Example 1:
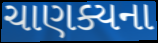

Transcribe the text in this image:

ચાણક્યના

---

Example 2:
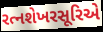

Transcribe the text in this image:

રત્નશેખરસૂરિએ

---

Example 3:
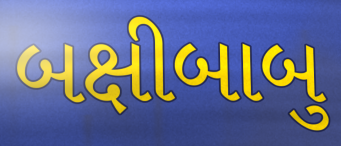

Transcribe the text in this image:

બક્ષીબાબુ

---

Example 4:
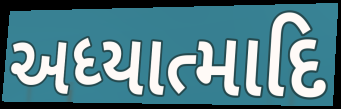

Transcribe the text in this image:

અધ્યાત્માદિ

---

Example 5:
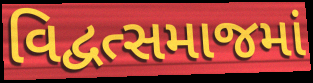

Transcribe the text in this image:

વિદ્વત્સમાજમાં